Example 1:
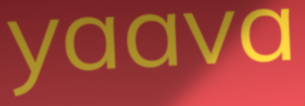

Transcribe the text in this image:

yaava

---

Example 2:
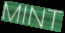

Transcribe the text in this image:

MINT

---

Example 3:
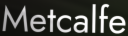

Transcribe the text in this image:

Metcalfe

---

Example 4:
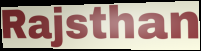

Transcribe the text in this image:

Rajsthan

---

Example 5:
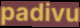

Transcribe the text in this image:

padivu